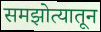
समझोत्यातून